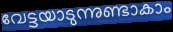
വേട്ടയാടുന്നുണ്ടാകാം